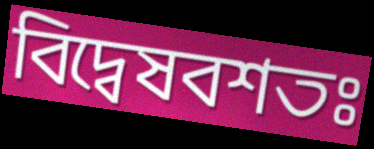
বিদ্বেষবশতঃ